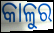
କାଳୁର